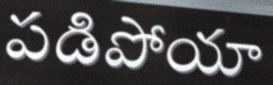
పడిపోయా